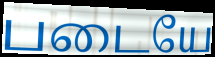
படையே